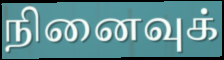
நினைவுக்